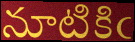
నూటికిఁ